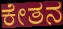
ಕೇತನ